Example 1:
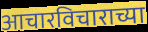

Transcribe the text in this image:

आचारविचाराच्या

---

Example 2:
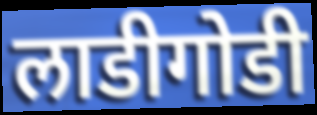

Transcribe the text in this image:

लाडीगोडी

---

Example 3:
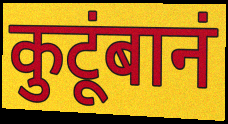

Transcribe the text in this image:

कुटूंबानं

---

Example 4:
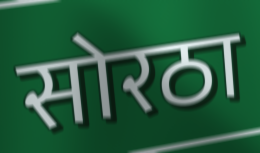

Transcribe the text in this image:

सोरठा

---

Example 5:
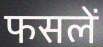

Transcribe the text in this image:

फसलें